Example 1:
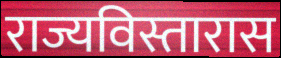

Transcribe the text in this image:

राज्यविस्तारास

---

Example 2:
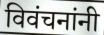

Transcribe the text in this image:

विवंचनांनी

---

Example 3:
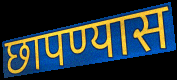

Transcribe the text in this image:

छापण्यास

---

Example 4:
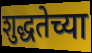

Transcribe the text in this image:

शुद्धतेच्या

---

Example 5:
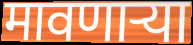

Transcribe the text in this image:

मावणाऱ्या